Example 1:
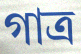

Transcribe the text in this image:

গাত্র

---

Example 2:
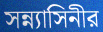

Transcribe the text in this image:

সন্ন্যাসিনীর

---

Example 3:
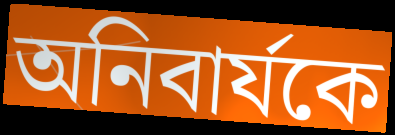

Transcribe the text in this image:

অনিবার্যকে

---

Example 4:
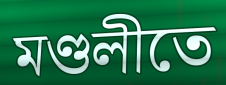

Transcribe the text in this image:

মণ্ডলীতে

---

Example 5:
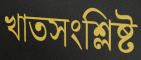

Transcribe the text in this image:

খাতসংশ্লিষ্ট